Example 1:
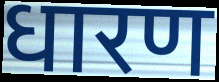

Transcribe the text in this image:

धारण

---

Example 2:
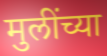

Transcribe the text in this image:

मुलींच्या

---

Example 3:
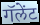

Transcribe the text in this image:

गॅलेंट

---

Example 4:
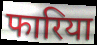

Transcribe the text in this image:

फारिया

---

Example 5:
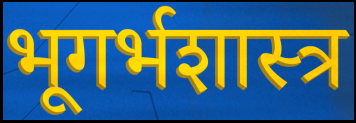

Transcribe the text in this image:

भूगर्भशास्त्र